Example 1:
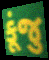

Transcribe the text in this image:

કૂંજુ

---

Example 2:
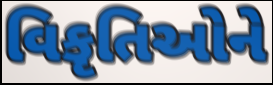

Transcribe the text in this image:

વિકૃતિઓને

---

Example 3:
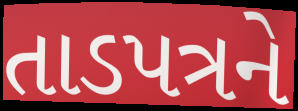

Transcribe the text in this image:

તાડપત્રને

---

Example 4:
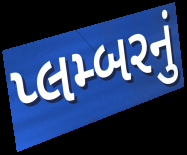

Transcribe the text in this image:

પ્લમ્બરનું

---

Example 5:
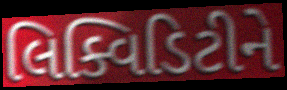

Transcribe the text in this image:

લિક્વિડિટીને